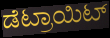
ಡೆಟ್ರಾಯಿಟ್